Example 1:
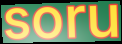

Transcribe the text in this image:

soru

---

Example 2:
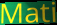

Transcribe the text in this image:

Mati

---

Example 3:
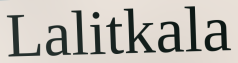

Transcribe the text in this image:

Lalitkala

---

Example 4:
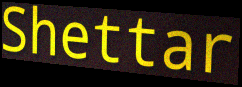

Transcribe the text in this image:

Shettar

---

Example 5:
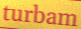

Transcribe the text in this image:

turbam